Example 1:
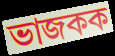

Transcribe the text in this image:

ভাজকক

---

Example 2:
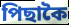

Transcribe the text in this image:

পিছাকৈ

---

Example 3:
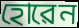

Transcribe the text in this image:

হোৱেন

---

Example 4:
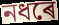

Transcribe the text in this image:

নধৰে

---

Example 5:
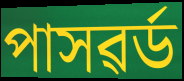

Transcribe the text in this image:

পাসৱৰ্ড